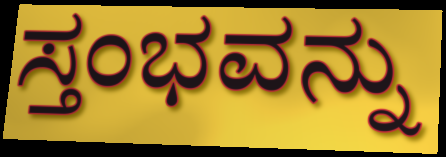
ಸ್ತಂಭವನ್ನು